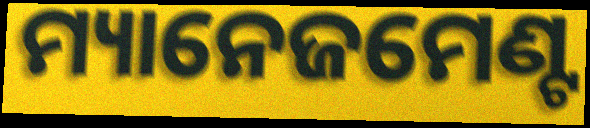
ମ୍ୟାନେଜମେଣ୍ଟ